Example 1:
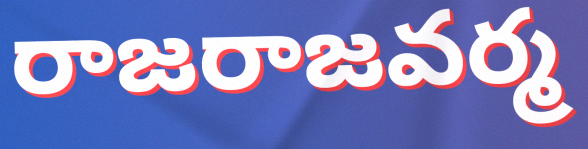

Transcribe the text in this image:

రాజరాజవర్మ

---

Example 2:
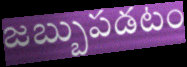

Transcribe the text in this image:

జబ్బుపడటం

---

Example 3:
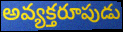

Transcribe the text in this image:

అవ్యక్తరూపుడు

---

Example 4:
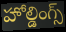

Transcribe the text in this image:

హోల్డింగ్స్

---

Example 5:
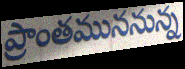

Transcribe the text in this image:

ప్రాంతముననున్న